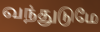
வந்துடுமே